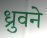
ध्रुवने